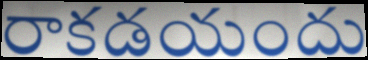
రాకడయందు